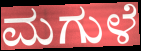
ಮಗುಳೆ